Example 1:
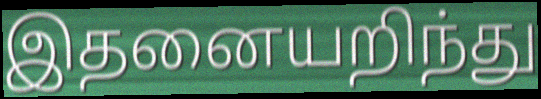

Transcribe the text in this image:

இதனையறிந்து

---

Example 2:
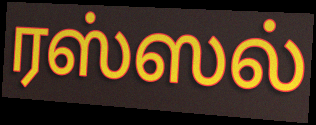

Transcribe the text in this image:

ரஸ்ஸல்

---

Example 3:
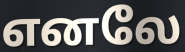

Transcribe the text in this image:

எனலே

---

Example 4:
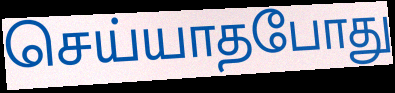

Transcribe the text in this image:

செய்யாதபோது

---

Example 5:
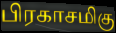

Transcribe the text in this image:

பிரகாசமிகு